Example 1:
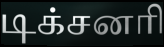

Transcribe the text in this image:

டிக்சனரி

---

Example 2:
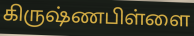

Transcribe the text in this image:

கிருஷ்ணபிள்ளை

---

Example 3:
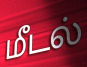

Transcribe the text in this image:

மீடல்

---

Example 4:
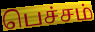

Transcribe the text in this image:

பெச்சம்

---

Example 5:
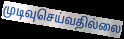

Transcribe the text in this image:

முடிவுசெய்வதில்லை